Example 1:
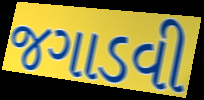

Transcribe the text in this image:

જગાડવી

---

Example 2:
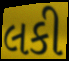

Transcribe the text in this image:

લકી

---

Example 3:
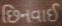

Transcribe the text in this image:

છિનવાઈ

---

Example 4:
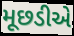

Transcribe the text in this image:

મૂછડીએ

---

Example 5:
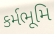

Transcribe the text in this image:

કર્મભૂમિ